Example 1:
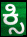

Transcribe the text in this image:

ಕ್ಸಿ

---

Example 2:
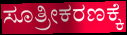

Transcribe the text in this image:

ಸೂತ್ರೀಕರಣಕ್ಕೆ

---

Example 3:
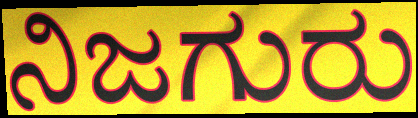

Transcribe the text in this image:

ನಿಜಗುರು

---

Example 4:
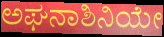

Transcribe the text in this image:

ಅಘನಾಶಿನಿಯೇ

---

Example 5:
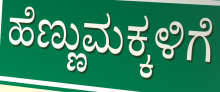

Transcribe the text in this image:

ಹೆಣ್ಣುಮಕ್ಕಳಿಗೆ